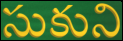
సుకుని